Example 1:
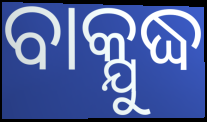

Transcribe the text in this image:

ବାକ୍ଯୁଦ୍ଧ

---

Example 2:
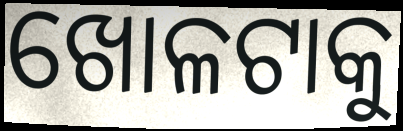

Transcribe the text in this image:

ଖୋଳଟାକୁ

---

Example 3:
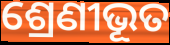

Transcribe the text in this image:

ଶ୍ରେଣୀଭୂତ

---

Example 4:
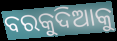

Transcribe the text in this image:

ବରକୁଦିଆକୁ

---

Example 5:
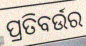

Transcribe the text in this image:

ପ୍ରତିବର୍ଉର